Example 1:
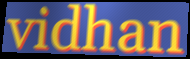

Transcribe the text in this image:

vidhan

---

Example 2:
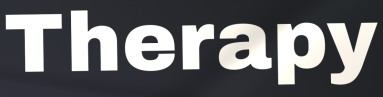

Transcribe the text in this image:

Therapy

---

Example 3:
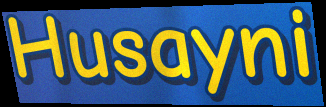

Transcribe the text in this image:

Husayni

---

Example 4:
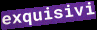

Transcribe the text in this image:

exquisivi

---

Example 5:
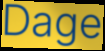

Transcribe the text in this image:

Dage